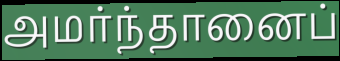
அமர்ந்தானைப்